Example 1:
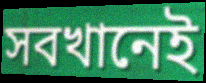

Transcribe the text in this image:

সবখানেই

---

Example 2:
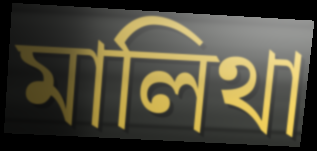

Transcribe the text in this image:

মালিথা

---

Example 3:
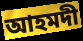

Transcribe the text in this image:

আহমদী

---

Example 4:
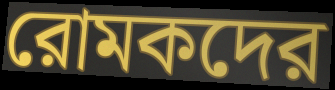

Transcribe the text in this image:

রোমকদের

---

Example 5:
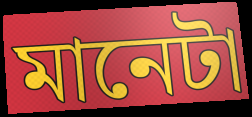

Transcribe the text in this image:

মানেটা